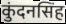
कुंदनसिंह